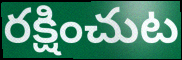
రక్షించుట